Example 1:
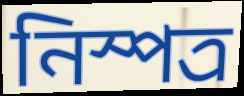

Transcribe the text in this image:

নিস্পত্র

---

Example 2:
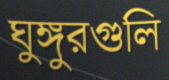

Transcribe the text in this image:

ঘুঙ্গুরগুলি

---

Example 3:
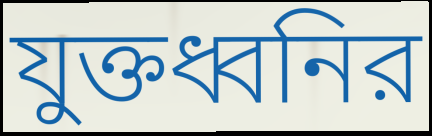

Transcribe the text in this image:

যুক্তধ্বনির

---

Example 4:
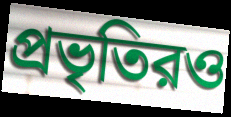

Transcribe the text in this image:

প্রভৃতিরও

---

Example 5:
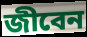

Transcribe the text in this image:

জীবেন